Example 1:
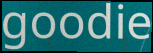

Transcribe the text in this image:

goodie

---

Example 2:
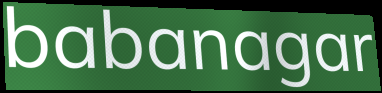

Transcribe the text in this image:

babanagar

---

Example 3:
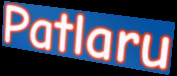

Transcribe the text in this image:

Patlaru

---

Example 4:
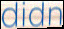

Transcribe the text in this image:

didn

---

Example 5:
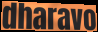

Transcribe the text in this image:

dharavo